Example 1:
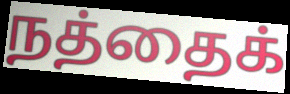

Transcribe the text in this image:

நத்தைக்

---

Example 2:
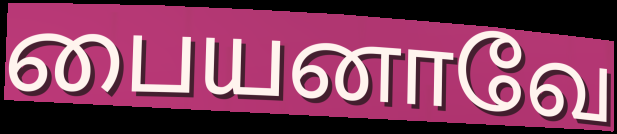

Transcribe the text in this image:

பையனாவே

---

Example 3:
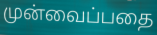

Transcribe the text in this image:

முன்வைப்பதை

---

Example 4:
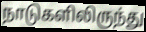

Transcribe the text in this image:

நாடுகளிலிருந்து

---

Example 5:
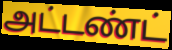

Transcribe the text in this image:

அட்டண்ட்